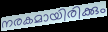
നരകമായിരിക്കും